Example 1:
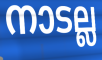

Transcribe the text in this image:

നാടല്ല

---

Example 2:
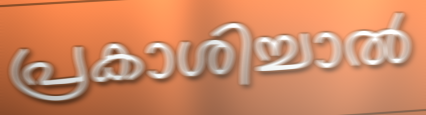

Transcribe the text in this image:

പ്രകാശിച്ചാൽ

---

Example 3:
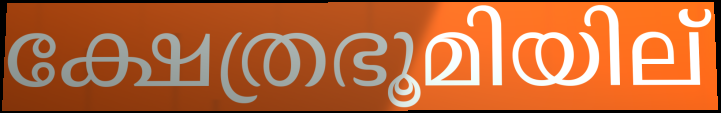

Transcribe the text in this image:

ക്ഷേത്രഭൂമിയില്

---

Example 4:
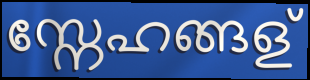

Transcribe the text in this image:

സ്നേഹങ്ങള്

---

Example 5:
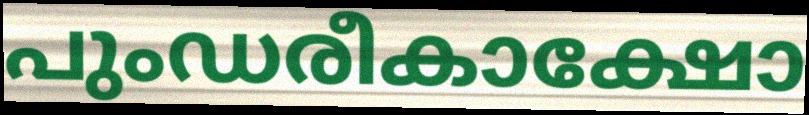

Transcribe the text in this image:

പുംഡരീകാക്ഷോ